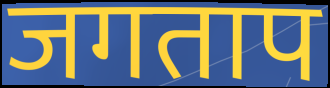
जगताप